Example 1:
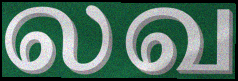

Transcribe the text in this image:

லவ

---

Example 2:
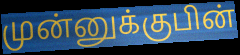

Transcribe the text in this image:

முன்னுக்குபின்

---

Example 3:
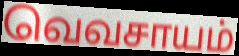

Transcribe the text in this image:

வெவசாயம்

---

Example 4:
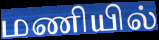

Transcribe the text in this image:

மணியில்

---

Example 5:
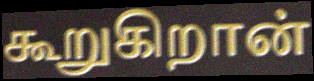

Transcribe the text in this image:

கூறுகிறான்